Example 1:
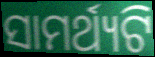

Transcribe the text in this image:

ସାମର୍ଥ୍ୟଟି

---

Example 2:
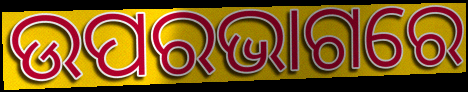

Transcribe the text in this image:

ଉପରଭାଗରେ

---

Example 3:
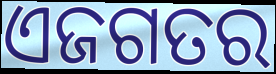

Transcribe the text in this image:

ଏଜଗତର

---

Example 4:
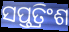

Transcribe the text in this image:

ସପ୍ତତ୍ରିଂଶ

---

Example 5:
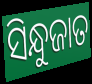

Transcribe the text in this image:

ସିନ୍ଧୁଜାତ